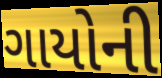
ગાયોની